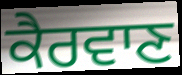
ਕੈਰਵਾਣ